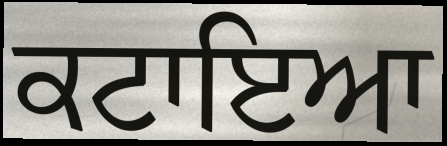
ਕਟਾਇਆ